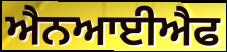
ਐਨਆਈਐਫ